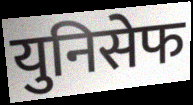
युनिसेफ